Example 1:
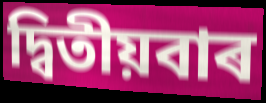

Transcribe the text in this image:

দ্বিতীয়বাৰ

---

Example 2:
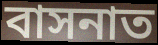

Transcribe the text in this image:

বাসনাত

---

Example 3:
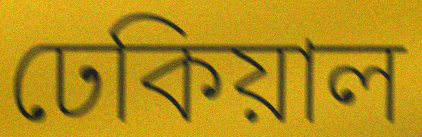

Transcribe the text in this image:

ঢেকিয়াল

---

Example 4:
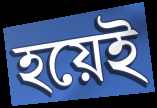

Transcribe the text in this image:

হয়েই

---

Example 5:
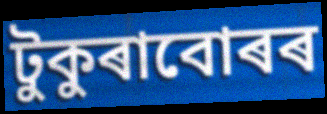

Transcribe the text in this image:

টুকুৰাবোৰৰ